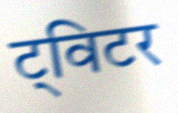
ट्‌विटर